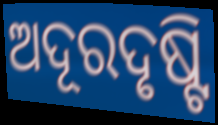
ଅଦୂରଦୃଷ୍ଟି